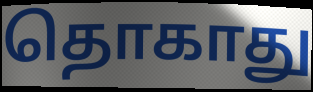
தொகாது